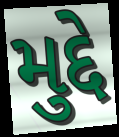
મુદ્દે